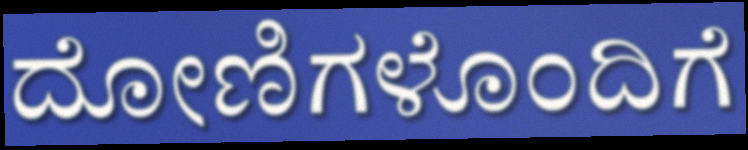
ದೋಣಿಗಳೊಂದಿಗೆ